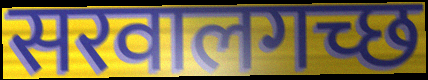
सरवालगच्छ